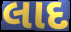
લાદ